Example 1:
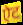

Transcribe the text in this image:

ऐट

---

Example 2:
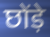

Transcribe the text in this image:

छोंड़े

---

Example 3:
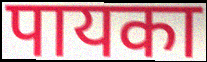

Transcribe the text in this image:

पायका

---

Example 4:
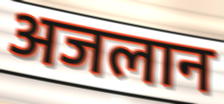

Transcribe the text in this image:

अजलान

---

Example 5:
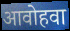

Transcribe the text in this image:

आवोहवा